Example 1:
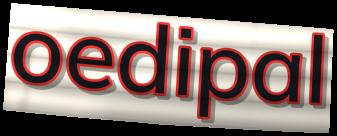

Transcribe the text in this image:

oedipal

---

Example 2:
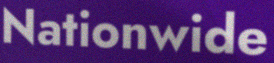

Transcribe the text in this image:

Nationwide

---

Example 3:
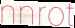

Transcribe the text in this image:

nnrot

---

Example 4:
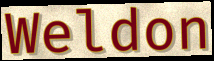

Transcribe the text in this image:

Weldon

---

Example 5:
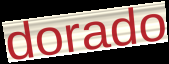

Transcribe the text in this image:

dorado